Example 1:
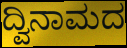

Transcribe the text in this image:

ದ್ವಿನಾಮದ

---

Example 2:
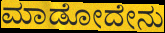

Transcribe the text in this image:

ಮಾಡೋದೇನು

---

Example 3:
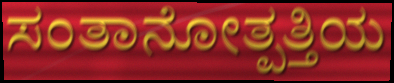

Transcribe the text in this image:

ಸಂತಾನೋತ್ಪತ್ತಿಯ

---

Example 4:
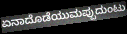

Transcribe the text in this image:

ಏನಾದೊಡೆಯುಮಪ್ಪುದುಂಟು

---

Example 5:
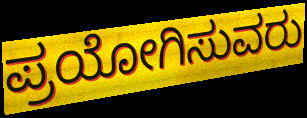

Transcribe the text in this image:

ಪ್ರಯೋಗಿಸುವರು